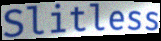
Slitless